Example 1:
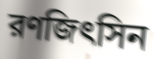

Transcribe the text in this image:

রণজিৎসিন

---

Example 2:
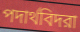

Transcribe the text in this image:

পদার্থবিদরা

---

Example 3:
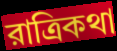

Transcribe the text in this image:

রাত্রিকথা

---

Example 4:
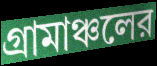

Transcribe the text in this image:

গ্রামাঞ্চলের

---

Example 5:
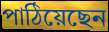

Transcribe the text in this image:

পাঠিয়েছেন